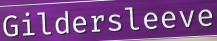
Gildersleeve